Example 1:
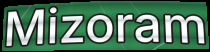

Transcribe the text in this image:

Mizoram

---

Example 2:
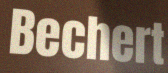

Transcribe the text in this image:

Bechert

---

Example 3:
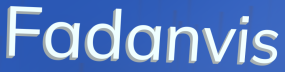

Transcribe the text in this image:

Fadanvis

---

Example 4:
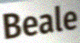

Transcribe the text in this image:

Beale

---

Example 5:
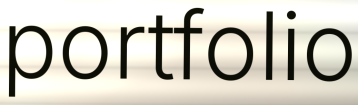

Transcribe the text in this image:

portfolio